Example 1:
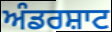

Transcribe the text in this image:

ਅੰਡਰਸ਼ਾਟ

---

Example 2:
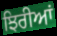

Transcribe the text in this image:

ਝਿਰੀਆਂ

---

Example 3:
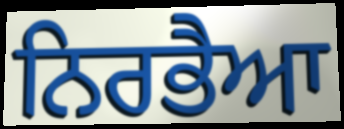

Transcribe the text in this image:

ਨਿਰਭੈਆ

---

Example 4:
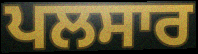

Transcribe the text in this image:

ਪਲਸਾਰ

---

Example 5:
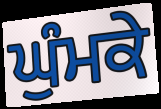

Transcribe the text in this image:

ਘੁੰਮਕੇ